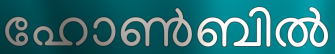
ഹോൺബിൽ